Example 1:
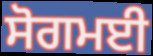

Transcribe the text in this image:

ਸੋਗਮਈ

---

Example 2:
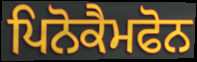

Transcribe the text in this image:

ਪਿਨੋਕੈਮਫੋਨ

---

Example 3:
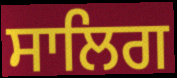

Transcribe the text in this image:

ਸਾਲਿਗ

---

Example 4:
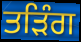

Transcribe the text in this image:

ਤੜਿੰਗ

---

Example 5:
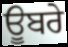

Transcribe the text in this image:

ਊਬਰੇ